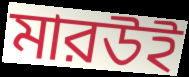
মারউই